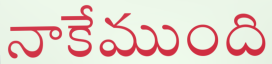
నాకేముంది